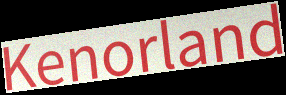
Kenorland